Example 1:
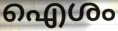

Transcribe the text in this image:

ഐശം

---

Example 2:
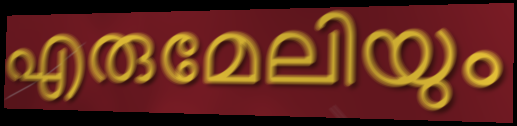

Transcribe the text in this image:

എരുമേലിയും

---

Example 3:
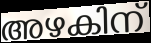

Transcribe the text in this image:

അഴകിന്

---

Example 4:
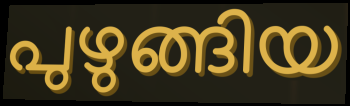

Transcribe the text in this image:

പുഴുങ്ങിയ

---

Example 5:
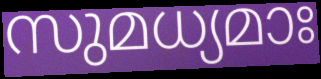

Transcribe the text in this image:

സുമധ്യമാഃ